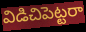
విడిచిపెట్టరా